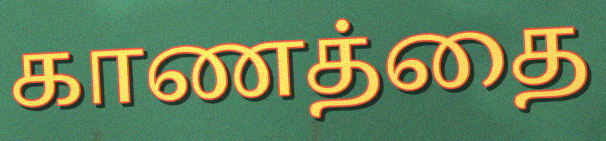
காணத்தை